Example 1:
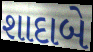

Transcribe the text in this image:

શાદાબે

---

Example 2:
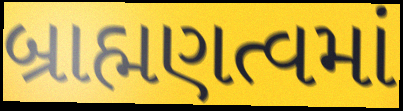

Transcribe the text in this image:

બ્રાહ્મણત્વમાં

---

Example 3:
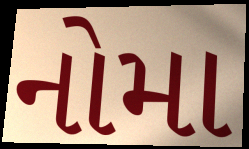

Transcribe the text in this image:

નોમા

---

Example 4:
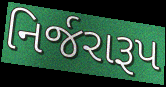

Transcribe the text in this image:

નિર્જરારૂપ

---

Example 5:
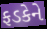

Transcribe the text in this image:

ફડકેને